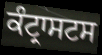
ਕੰਟ੍ਰਾਸਟਸ